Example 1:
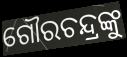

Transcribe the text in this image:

ଗୌରଚନ୍ଦ୍ରଙ୍କୁ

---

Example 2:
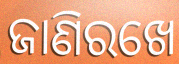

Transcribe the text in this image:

ଜାଣିରଖେ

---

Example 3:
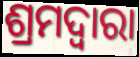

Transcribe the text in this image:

ଶ୍ରମଦ୍ଵାରା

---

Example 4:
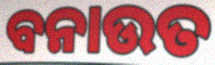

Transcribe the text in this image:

ବନାଉତ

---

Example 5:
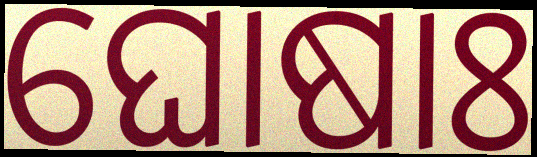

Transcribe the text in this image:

ଘୋଷାଃ